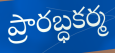
ప్రారబ్ధకర్మ